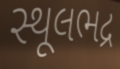
સ્થૂલભદ્ર